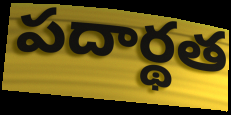
పదార్థత